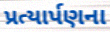
પ્રત્યાર્પણના